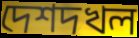
দেশদখল